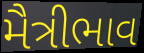
મૈત્રીભાવ